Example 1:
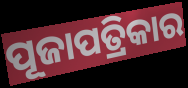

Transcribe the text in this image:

ପୂଜାପତ୍ରିକାର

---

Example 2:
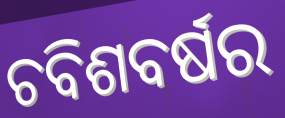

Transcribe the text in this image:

ଚବିଶବର୍ଷର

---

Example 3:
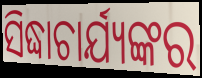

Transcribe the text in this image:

ସିଦ୍ଧାଚାର୍ଯ୍ୟଙ୍କର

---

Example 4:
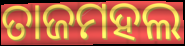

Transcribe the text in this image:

ତାଜମହଲ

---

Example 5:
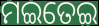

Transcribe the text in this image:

ମଇତେଇ